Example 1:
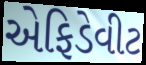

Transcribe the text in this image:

એફિડેવીટ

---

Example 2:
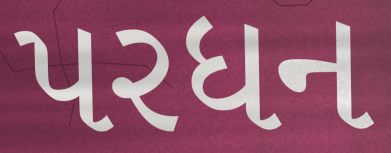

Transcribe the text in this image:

પરધન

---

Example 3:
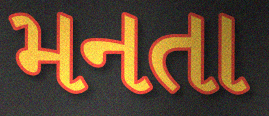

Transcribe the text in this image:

મનતા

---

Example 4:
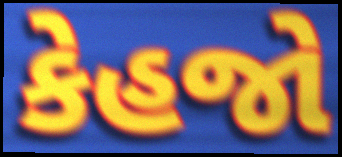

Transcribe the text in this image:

કેહજો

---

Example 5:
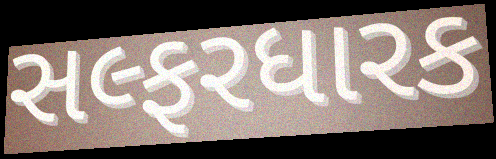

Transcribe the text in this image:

સલ્ફરધારક